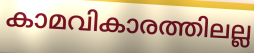
കാമവികാരത്തിലല്ല